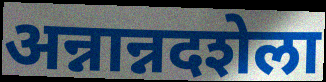
अन्नान्नदशेला